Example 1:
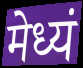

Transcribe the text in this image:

मेध्यं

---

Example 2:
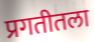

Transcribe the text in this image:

प्रगतीतला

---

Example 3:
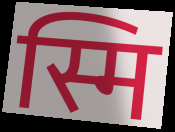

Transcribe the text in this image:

स्मि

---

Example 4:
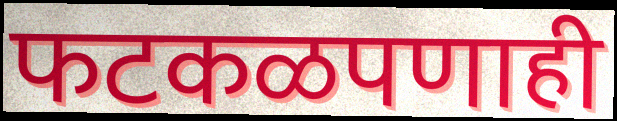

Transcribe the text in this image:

फटकळपणाही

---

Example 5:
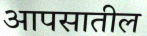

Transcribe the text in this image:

आपसातील